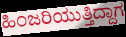
ಹಿಂಜರಿಯುತ್ತಿದ್ದಾಗ